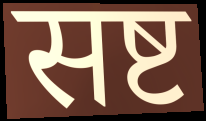
सष्ट